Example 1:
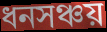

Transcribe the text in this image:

ধনসঞ্চয়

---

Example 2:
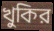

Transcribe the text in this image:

খুকির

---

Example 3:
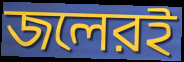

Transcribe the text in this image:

জলেরই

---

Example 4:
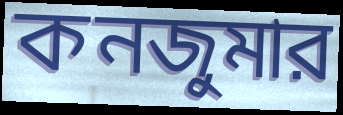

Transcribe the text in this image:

কনজুমার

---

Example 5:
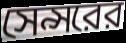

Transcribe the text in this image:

সেন্সরের